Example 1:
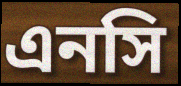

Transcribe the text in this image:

এনসি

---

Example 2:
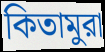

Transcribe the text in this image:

কিতামুরা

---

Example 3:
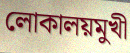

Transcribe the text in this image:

লোকালয়মুখী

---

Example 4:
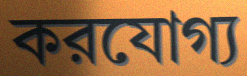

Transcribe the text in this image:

করযোগ্য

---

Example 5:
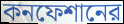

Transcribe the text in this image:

কনফেশানের